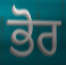
ਭੋਰ